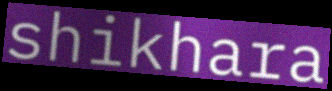
shikhara